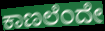
ಕಾಣಲೆಂದೇ